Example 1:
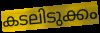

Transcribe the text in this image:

കടലിടുക്കം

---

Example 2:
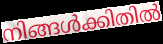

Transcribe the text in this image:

നിങ്ങൾക്കിതിൽ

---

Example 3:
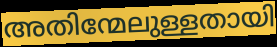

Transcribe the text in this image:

അതിന്മേലുള്ളതായി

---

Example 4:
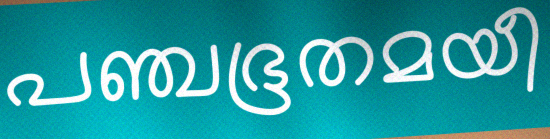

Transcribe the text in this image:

പഞ്ചഭൂതമയീ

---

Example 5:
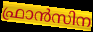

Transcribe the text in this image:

ഫ്രാൻസിന